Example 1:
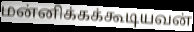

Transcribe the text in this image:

மன்னிக்கக்கூடியவன்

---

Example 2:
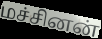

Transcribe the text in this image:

மச்சினன்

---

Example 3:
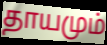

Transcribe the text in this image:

தாயமும்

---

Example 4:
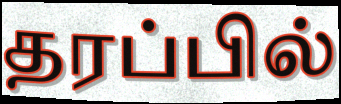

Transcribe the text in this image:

தரப்பில்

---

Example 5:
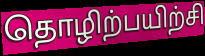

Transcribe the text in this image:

தொழிற்பயிற்சி